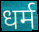
धर्म